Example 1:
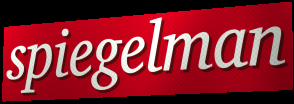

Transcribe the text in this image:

spiegelman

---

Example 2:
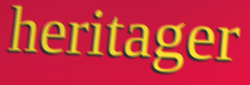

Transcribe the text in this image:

heritager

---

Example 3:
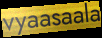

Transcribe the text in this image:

vyaasaala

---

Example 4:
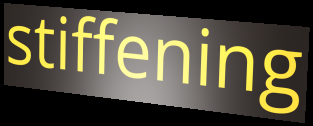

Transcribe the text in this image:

stiffening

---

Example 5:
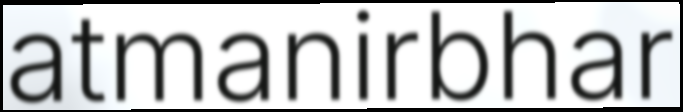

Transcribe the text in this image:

atmanirbhar